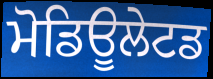
ਮੋਡਿਊਲੇਟਡ